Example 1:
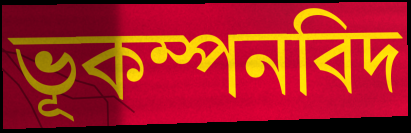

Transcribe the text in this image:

ভূকম্পনবিদ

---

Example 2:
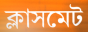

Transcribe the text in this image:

ক্লাসমেট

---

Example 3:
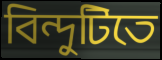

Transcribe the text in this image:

বিন্দুটিতে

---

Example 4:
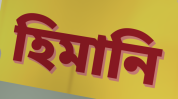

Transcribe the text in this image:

হিমানি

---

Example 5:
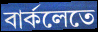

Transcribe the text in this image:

বার্কলেতে